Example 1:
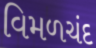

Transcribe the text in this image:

વિમળચંદ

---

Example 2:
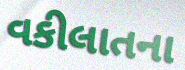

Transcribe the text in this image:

વકીલાતના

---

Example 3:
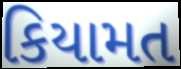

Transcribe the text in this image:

કિયામત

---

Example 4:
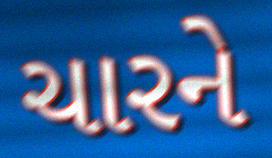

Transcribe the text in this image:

ચારને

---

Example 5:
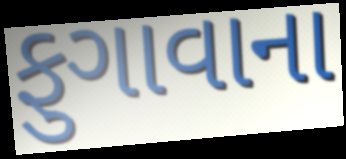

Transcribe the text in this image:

ફુગાવાના